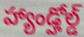
హ్యాండ్హోల్డ్